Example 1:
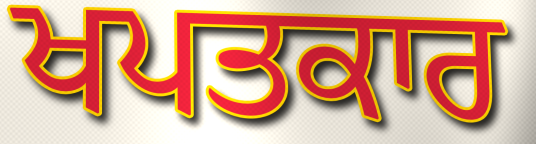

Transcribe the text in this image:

ਖਪਤਕਾਰ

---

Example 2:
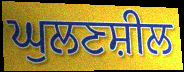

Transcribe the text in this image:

ਘੁਲਣਸ਼ੀਲ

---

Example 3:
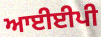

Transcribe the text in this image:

ਆਈਈਪੀ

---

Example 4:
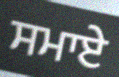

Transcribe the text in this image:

ਸਮਾਏ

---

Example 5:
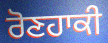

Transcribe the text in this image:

ਰੋਣਹਾਕੀ